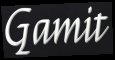
Gamit